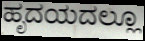
ಹೃದಯದಲ್ಲೂ